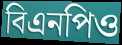
বিএনপিও